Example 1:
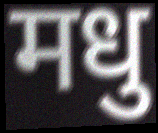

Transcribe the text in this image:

मधु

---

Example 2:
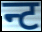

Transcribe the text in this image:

न्ट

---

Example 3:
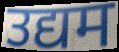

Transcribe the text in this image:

उद्यम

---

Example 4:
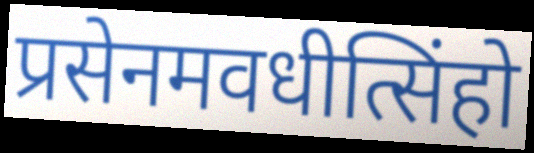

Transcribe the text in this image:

प्रसेनमवधीत्सिंहो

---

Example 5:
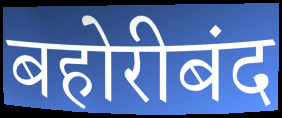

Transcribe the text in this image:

बहोरीबंद